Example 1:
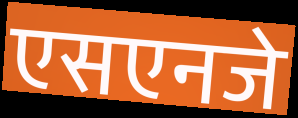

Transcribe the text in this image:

एसएनजे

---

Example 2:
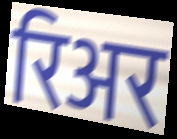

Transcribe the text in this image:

रिअर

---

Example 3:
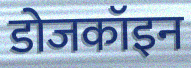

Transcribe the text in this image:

डोजकॉइन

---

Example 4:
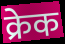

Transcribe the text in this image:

क्रेक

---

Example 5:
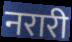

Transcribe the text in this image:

नरारी